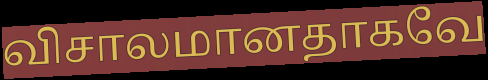
விசாலமானதாகவே